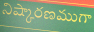
నిష్కారణముగా